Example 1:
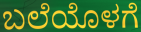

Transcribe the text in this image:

ಬಲೆಯೊಳಗೆ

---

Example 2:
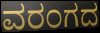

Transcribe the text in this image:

ವರಂಗದ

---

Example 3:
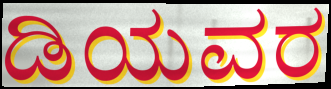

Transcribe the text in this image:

ಡಿಯವರ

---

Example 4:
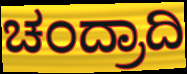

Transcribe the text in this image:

ಚಂದ್ರಾದಿ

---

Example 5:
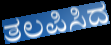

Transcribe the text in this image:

ತಲಪಿಸಿದ